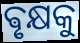
ଵୃକ୍ଷକୁ